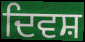
ਦਿਵਸ਼